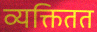
व्यक्तितत